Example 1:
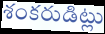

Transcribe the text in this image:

శంకరుడిట్లు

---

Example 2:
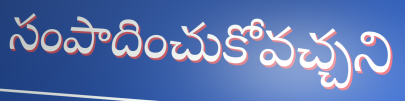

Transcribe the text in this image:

సంపాదించుకోవచ్చని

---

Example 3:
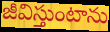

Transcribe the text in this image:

జీవిస్తుంటాను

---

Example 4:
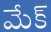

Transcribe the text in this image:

మేక్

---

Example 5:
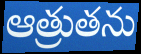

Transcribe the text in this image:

ఆత్రుతను